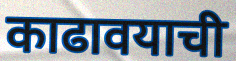
काढावयाची